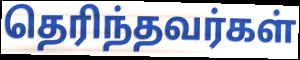
தெரிந்தவர்கள்